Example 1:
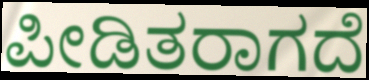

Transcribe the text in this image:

ಪೀಡಿತರಾಗದೆ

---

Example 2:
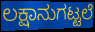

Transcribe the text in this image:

ಲಕ್ಷಾನುಗಟ್ಟಲೆ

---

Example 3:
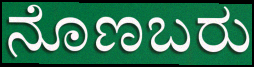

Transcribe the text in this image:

ನೊಣಬರು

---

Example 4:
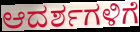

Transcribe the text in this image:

ಆದರ್ಶಗಳಿಗೆ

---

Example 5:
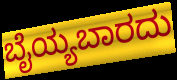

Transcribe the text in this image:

ಬೈಯ್ಯಬಾರದು